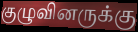
குழுவினருக்கு